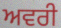
ਅਵਰੀ